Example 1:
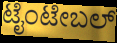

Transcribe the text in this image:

ಟೈಂಟೇಬಲ್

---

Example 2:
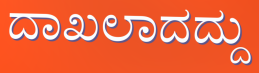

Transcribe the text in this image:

ದಾಖಲಾದದ್ದು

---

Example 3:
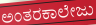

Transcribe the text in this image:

ಅಂತರಕಾಲೇಜು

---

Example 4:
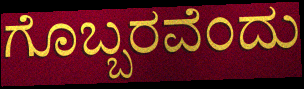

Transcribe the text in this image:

ಗೊಬ್ಬರವೆಂದು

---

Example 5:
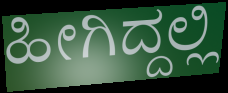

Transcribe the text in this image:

ಹೀಗಿದ್ದಲ್ಲಿ